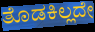
ತೊಡಕಿಲ್ಲದೇ